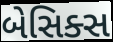
બેસિક્સ